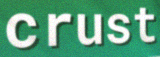
crust